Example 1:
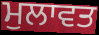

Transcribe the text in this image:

ਮੁਲਾਵਤ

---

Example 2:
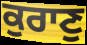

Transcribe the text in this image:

ਕੁਰਾਣੁ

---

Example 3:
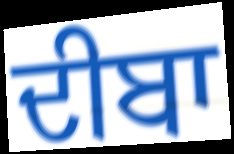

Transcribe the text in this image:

ਦੀਬਾ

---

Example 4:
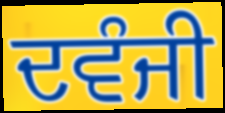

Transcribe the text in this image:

ਦਵੰਜੀ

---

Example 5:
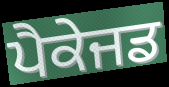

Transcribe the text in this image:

ਪੈਕੇਜਡ